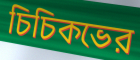
চিচিকভের